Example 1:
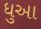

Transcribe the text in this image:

ધુઆ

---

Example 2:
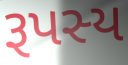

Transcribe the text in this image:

રૂપસ્ય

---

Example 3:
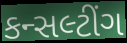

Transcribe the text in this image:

કન્સલ્ટીંગ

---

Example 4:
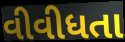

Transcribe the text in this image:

વીવીધતા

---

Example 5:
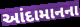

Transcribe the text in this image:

આંદામાનના